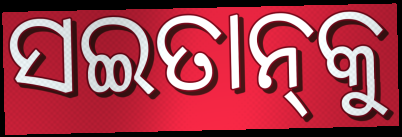
ସଇତାନ୍‌କୁ